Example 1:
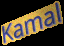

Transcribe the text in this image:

Kamal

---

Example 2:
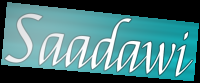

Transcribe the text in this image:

Saadawi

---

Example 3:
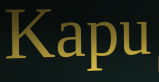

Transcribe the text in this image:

Kapu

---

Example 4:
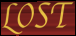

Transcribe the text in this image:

LOST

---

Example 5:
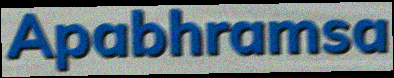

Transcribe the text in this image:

Apabhramsa